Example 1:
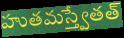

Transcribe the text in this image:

హుతమస్త్వేతత్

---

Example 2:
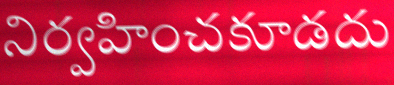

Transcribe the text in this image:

నిర్వహించకూడదు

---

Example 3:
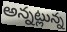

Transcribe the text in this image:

అన్నట్లున్న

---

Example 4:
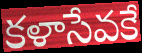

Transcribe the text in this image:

కళాసేవకే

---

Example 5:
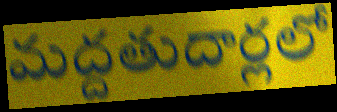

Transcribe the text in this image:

మద్దతుదార్లలో